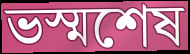
ভস্মশেষ